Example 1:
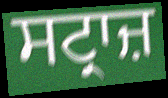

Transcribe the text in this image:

ਸਟ੍ਰਾਜ਼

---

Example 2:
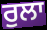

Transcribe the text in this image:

ਰੁਲਾ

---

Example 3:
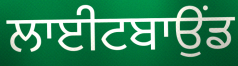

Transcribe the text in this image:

ਲਾਈਟਬਾਉਂਡ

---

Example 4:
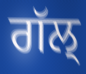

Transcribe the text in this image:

ਗੱਲ੍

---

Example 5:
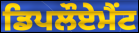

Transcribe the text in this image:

ਡਿਪਲੌਏਮੈਂਟ